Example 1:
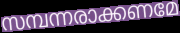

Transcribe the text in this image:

സമ്പന്നരാക്കണമേ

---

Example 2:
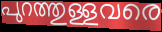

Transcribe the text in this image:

പുറത്തുള്ളവരെ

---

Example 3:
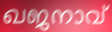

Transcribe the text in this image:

ഖജനാവ്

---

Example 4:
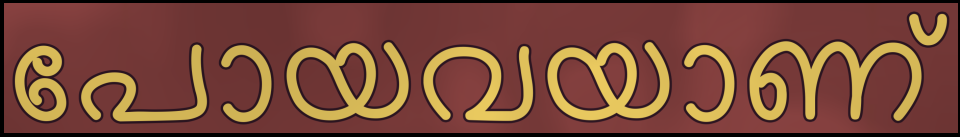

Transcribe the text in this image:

പോയവയാണ്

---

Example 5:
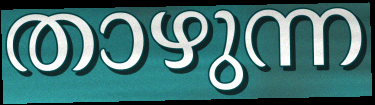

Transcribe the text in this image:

താഴുന്ന